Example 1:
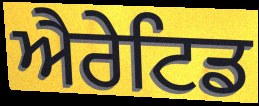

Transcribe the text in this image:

ਐਰੇਟਿਡ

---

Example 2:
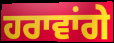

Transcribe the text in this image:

ਹਰਾਵਾਂਗੇ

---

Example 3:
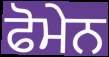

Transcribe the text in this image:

ਫੋਮੇਨ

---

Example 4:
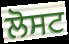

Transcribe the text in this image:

ਲੋਸਟ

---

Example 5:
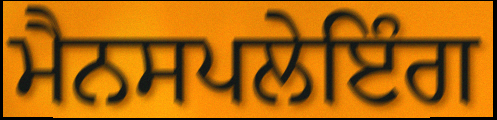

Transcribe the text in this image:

ਮੈਨਸਪਲੇਇੰਗ